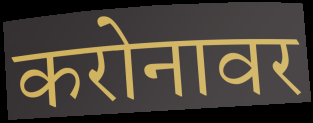
करोनावर